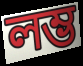
লম্ভ